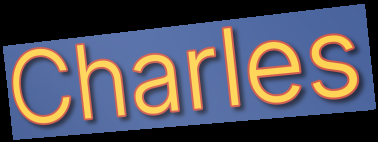
Charles